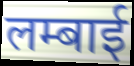
लम्बाई